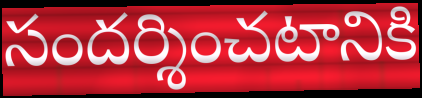
సందర్శించటానికి